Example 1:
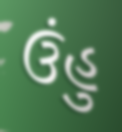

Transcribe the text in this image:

ઉંહુ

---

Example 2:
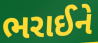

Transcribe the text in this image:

ભરાઈને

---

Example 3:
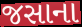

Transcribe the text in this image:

જસાના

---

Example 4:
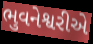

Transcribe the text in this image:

ભુવનેશ્વરીએ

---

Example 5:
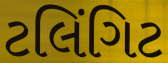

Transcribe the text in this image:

ટલિંગિટ